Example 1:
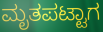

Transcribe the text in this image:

ಮೃತಪಟ್ಟಾಗ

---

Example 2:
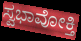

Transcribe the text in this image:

ಸ್ವಭಾವೋಕ್ತಿ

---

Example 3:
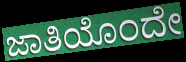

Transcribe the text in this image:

ಜಾತಿಯೊಂದೇ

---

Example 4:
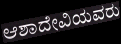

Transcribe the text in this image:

ಆಶಾದೇವಿಯವರು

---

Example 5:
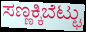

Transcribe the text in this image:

ಸಣ್ಣಕ್ಕಿಬೆಟ್ಟು